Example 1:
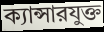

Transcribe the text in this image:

ক্যান্সারযুক্ত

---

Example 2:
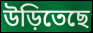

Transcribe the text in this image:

উড়িতেছে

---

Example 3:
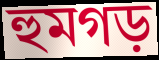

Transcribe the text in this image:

হুমগড়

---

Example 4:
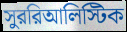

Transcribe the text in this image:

সুররিআলিস্টিক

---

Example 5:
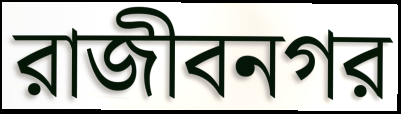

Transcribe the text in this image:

রাজীবনগর